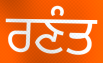
ਰਣੰਤ